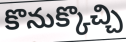
కొనుక్కొచ్చి